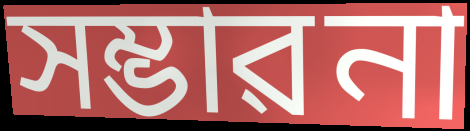
সম্ভাৱনা